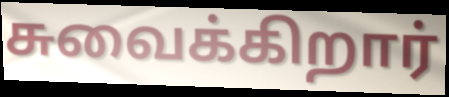
சுவைக்கிறார்